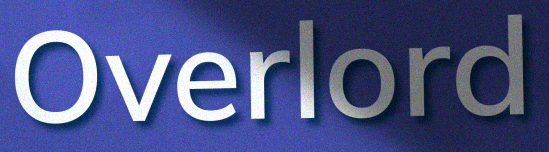
Overlord